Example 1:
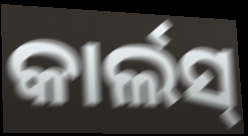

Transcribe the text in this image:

କାର୍ଲସ୍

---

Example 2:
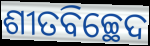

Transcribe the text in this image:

ଶୀତବିଚ୍ଛେଦ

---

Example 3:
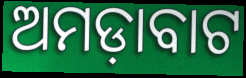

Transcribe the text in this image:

ଅମଡ଼ାବାଟ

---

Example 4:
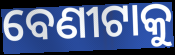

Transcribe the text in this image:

ବେଣୀଟାକୁ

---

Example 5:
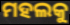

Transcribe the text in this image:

ମହଲକୁ